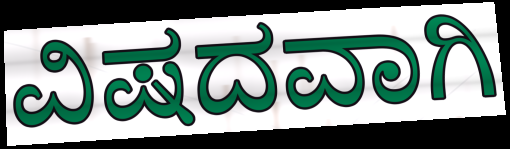
ವಿಷದವಾಗಿ